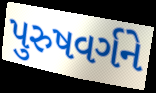
પુરુષવર્ગને